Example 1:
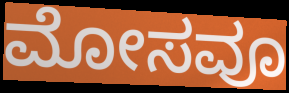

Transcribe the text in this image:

ಮೋಸವೂ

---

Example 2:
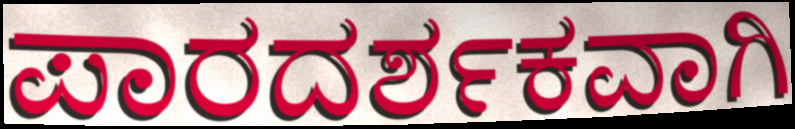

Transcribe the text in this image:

ಪಾರದರ್ಶಕವಾಗಿ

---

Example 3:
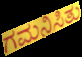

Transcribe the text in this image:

ಗಮನಿಸಿತು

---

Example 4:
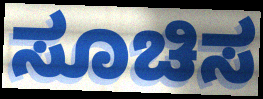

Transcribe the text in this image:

ಸೂಚಿಸ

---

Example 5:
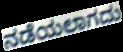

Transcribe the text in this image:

ನಡೆಯಲಾಗದು